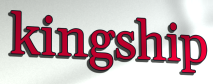
kingship